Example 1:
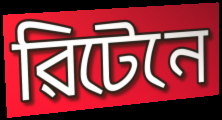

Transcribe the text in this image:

ৱিটেনে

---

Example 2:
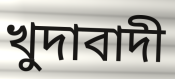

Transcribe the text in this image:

খুদাবাদী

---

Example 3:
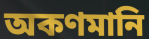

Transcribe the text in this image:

অকণমানি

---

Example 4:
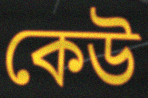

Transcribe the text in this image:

কেউ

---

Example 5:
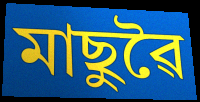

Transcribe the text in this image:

মাছুৱৈ